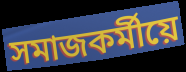
সমাজকৰ্মীয়ে